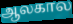
ஆலகால